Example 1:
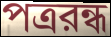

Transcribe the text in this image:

পত্ররন্ধ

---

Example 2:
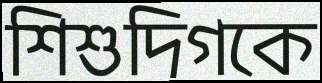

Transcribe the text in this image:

শিশুদিগকে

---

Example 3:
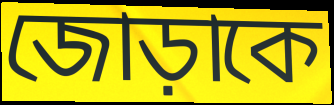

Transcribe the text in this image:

জোড়াকে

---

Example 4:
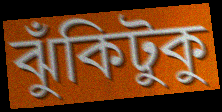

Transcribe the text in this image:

ঝুঁকিটুকু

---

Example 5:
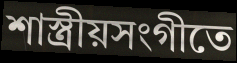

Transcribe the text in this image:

শাস্ত্রীয়সংগীতে